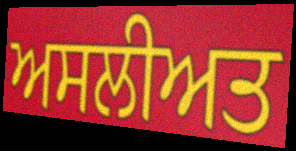
ਅਸਲੀਅਤ